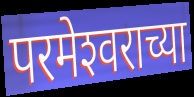
परमेश्‍वराच्या